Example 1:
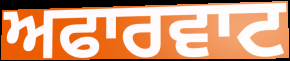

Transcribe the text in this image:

ਅਫਾਰਵਾਟ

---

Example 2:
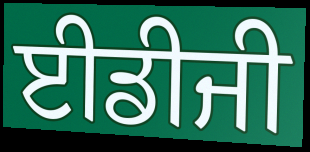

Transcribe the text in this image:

ਈਡੀਜੀ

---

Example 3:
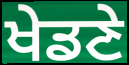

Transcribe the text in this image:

ਖੇਡਣੇ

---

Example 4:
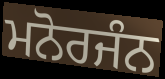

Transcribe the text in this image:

ਮਨੋਰਜੰਨ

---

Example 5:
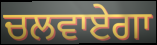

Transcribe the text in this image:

ਚਲਵਾਏਗਾ